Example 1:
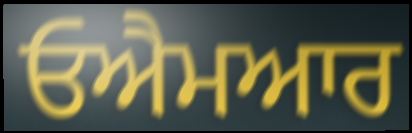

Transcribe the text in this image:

ਓਐਮਆਰ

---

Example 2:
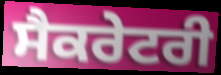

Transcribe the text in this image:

ਸੈਕਰੇਟਰੀ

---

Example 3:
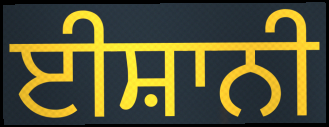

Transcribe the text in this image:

ਈਸ਼ਾਨੀ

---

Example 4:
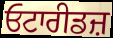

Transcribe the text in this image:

ਓਟਾਰੀਡਜ਼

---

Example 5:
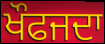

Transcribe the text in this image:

ਖੌਫਜਦਾ